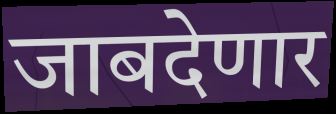
जाबदेणार